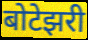
बोटेझरी